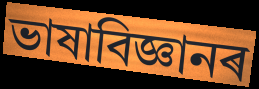
ভাষাবিজ্ঞানৰ